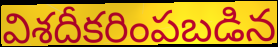
విశదీకరింపబడిన